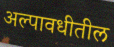
अल्पावधीतील